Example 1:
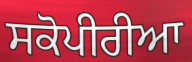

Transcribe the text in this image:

ਸਕੋਪੀਰੀਆ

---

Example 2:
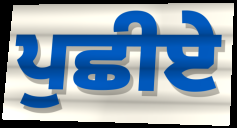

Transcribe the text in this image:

ਪੁਛੀਏ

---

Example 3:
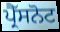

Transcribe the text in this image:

ਪ੍ਰੈੱਸਨੋਟ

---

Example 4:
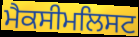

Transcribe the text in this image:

ਮੈਕਸੀਮਲਿਸਟ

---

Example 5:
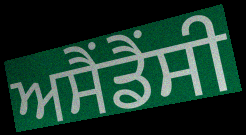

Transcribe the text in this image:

ਅਸੈਂਡੈਂਸੀ